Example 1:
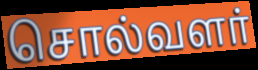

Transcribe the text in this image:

சொல்வளர்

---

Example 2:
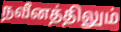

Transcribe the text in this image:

நவீனத்திலும்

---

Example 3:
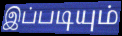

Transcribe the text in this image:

இப்படியும்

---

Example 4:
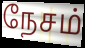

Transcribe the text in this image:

நேசம்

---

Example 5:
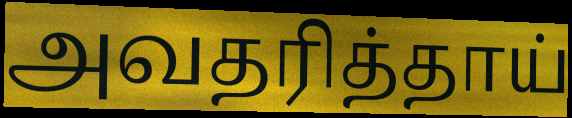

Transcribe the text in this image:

அவதரித்தாய்